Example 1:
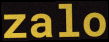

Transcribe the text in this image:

zalo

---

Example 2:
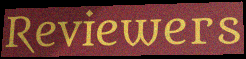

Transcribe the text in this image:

Reviewers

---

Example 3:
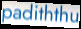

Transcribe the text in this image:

padiththu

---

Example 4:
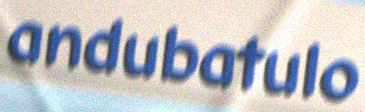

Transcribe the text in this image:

andubatulo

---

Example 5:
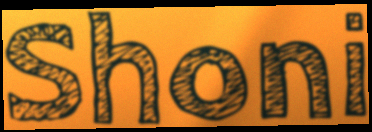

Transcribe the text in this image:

Shoni